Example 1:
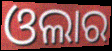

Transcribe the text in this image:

ଓଲାର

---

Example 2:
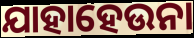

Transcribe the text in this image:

ଯାହାହେଉନା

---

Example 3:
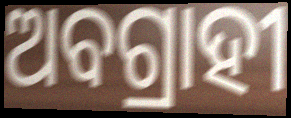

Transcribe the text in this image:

ଅବଗ୍ରାହୀ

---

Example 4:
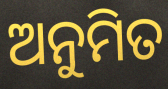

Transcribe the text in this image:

ଅନୁମିତ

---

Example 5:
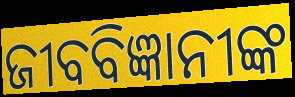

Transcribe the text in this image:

ଜୀବବିଜ୍ଞାନୀଙ୍କ